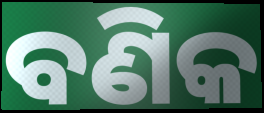
ବଣିକ